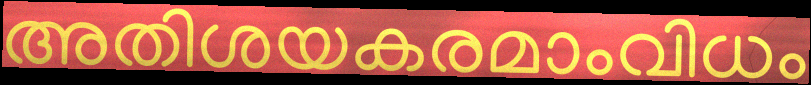
അതിശയകരമാംവിധം